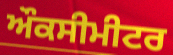
ਔਕਸੀਮੀਟਰ